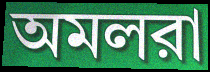
অমলরা